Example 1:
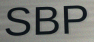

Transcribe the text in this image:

SBP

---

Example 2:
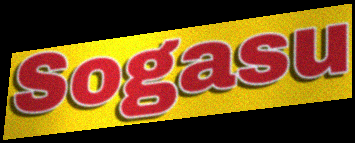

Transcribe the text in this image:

Sogasu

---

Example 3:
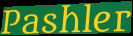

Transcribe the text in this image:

Pashler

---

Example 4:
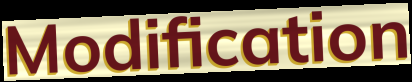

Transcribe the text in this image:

Modification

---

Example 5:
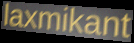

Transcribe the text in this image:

laxmikant